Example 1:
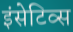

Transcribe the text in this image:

इंसेटिव्स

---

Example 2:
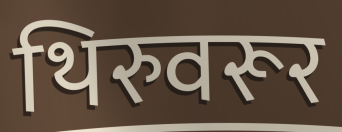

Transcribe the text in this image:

थिरुवरूर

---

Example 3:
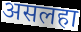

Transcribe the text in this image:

असलहा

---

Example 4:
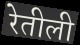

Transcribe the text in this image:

रेतीली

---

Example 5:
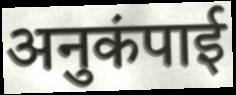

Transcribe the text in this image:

अनुकंपाई